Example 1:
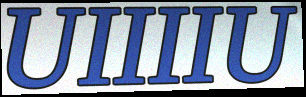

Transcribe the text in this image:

UIIIIU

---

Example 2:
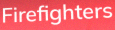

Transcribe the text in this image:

Firefighters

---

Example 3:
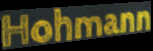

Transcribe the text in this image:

Hohmann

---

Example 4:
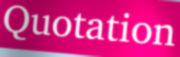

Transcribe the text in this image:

Quotation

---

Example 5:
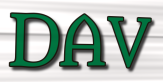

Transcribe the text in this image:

DAV